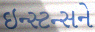
ઇન્સ્ટન્સને